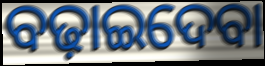
ବଢ଼ାଇଦେବା